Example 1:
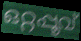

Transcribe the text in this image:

ഒറ്റപ്പൂവ്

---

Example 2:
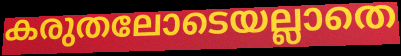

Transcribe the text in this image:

കരുതലോടെയല്ലാതെ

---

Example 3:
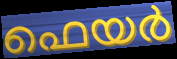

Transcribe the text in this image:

ഫെയർ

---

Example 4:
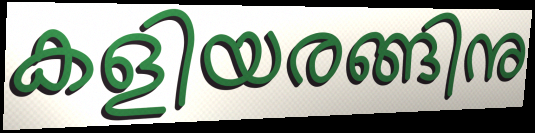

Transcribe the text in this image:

കളിയരങ്ങിനു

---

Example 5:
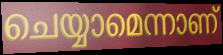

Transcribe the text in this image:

ചെയ്യാമെന്നാണ്